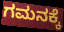
ಗಮನಕ್ಕೆ